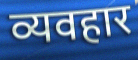
व्यवहार